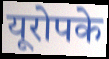
यूरोपके